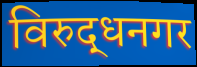
विरुद्धनगर